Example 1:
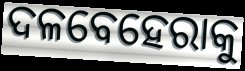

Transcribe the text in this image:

ଦଳବେହେରାକୁ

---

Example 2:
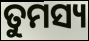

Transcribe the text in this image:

ତୁମସ୍ୟ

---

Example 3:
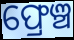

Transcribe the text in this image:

ଫ୍ରେଞ୍ଚ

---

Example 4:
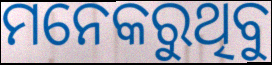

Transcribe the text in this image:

ମନେକରୁଥିବୁ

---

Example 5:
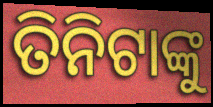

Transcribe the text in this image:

ତିନିଟାଙ୍କୁ